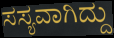
ಸಸ್ಯವಾಗಿದ್ದು